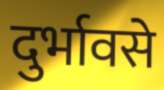
दुर्भावसे